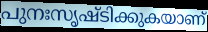
പുനഃസൃഷ്ടിക്കുകയാണ്